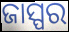
ଜାସ୍ପର